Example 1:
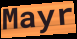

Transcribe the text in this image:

Mayr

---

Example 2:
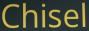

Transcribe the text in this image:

Chisel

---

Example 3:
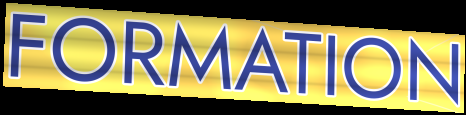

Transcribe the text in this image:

FORMATION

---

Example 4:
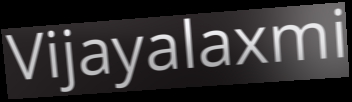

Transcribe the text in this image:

Vijayalaxmi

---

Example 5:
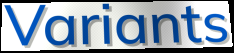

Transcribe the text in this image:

Variants